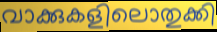
വാക്കുകളിലൊതുക്കി